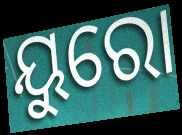
ୟୁରୋ